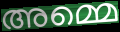
അമ്മെ